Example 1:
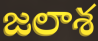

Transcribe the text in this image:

జలాశ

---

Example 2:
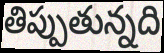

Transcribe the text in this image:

తిప్పుతున్నది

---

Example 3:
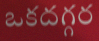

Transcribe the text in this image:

ఒకదగ్గర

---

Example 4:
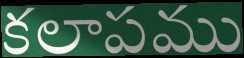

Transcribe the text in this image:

కలాపము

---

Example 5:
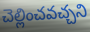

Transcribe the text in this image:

చెల్లించవచ్చని